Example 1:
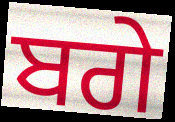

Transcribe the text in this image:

ਬਗੇ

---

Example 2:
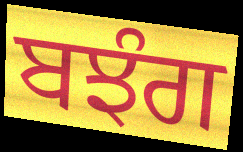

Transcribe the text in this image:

ਬਝੰਗ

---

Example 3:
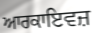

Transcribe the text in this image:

ਆਰਕਾਇਵਜ਼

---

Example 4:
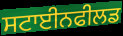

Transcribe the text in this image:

ਸਟਾਈਨਫੀਲਡ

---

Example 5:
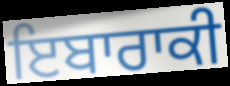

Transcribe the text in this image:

ਇਬਾਰਾਕੀ